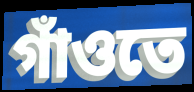
গাঁওতে